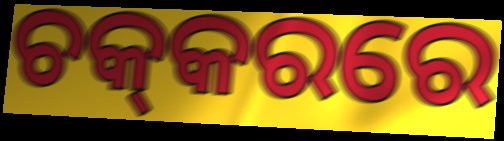
ଚକ୍‌କରରେ